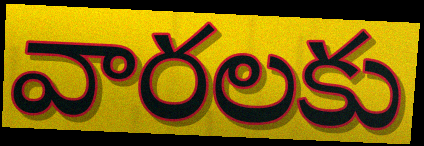
వారలకు